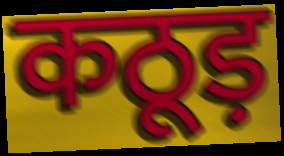
कठूड़